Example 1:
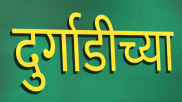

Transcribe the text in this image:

दुर्गाडीच्या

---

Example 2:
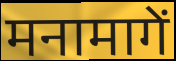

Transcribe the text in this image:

मनामागें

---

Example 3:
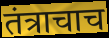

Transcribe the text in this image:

तंत्राचाच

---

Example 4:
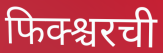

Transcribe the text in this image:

फिक्श्चरची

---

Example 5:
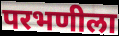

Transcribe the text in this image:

परभणीला